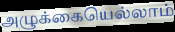
அழுக்கையெல்லாம்